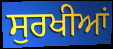
ਸੁਰਖੀਆਂ